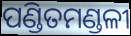
ପଣ୍ଡିତମଣ୍ଡଳୀ